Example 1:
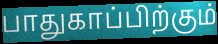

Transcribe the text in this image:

பாதுகாப்பிற்கும்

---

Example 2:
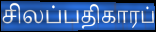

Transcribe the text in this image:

சிலப்பதிகாரப்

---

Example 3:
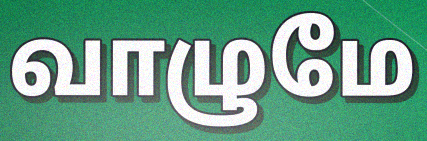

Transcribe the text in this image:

வாழுமே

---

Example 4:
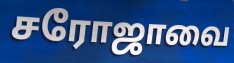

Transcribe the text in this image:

சரோஜாவை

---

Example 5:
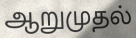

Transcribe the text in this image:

ஆறுமுதல்